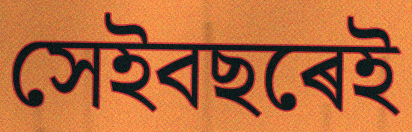
সেইবছৰেই